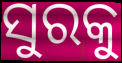
ସୁରକୁ